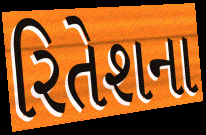
રિતેશના